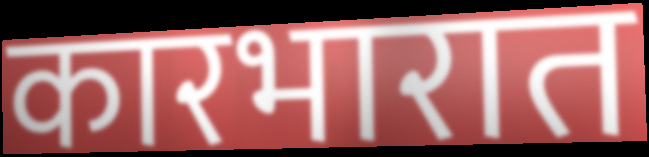
कारभारात